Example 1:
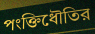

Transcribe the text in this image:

পংক্তিধৌতির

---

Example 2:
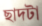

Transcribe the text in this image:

ছাদটা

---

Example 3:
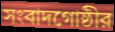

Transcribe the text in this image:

সংবাদগোষ্ঠীর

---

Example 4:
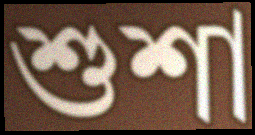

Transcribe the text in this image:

শুশা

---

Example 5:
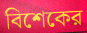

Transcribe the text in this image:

বিশেকের